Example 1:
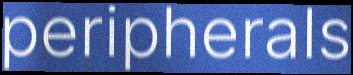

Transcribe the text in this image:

peripherals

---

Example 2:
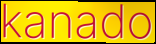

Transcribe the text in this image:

kanado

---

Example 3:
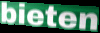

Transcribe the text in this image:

bieten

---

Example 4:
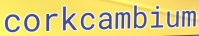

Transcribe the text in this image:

corkcambium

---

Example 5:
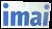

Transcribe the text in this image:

imai